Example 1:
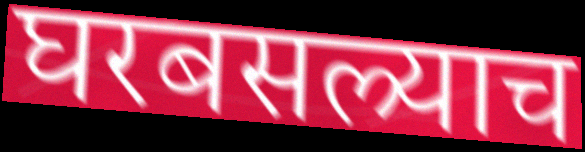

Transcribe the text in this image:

घरबसल्याच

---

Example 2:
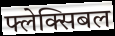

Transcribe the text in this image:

फ्लेक्सिबल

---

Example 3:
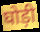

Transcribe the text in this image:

घोड़ी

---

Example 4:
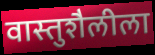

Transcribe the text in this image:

वास्तुशैलीला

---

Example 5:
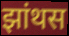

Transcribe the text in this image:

झांथस